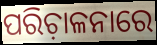
ପରିଚ଼ାଳନାରେ